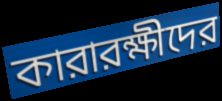
কারারক্ষীদের